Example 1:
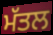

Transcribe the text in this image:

ਮੱਤਲ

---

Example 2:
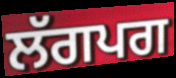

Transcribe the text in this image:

ਲੱਗਪਗ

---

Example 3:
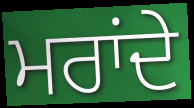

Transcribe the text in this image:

ਮਰਾਂਦੇ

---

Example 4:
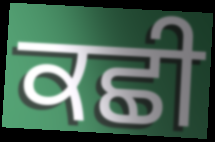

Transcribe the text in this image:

ਕਛੀ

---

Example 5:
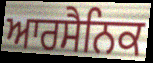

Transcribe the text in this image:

ਆਰਸੈਨਿਕ